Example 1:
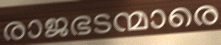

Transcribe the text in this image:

രാജഭടന്മാരെ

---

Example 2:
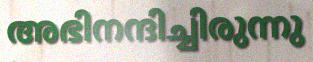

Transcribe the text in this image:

അഭിനന്ദിച്ചിരുന്നു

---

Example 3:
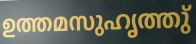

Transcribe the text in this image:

ഉത്തമസുഹൃത്തു്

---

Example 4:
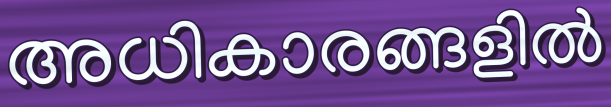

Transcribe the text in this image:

അധികാരങ്ങളിൽ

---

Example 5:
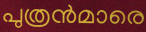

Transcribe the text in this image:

പുത്രൻമാരെ